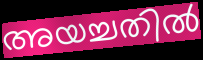
അയച്ചതിൽ